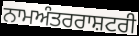
ਨਾਮਅੰਤਰਰਾਸ਼ਟਰੀ